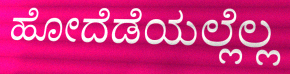
ಹೋದೆಡೆಯಲ್ಲೆಲ್ಲ